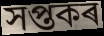
সপ্তকৰ